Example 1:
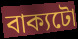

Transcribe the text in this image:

বাক্যটো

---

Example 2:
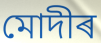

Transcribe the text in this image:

মোদীৰ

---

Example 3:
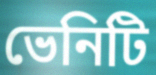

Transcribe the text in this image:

ভেনিটি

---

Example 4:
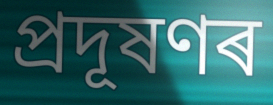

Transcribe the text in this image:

প্ৰদূষণৰ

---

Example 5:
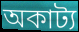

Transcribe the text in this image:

অকাট্য